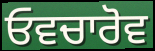
ਓਵਚਾਰੋਵ